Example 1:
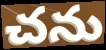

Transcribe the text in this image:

చను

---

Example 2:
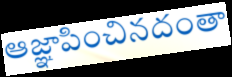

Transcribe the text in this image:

ఆజ్ఞాపించినదంతా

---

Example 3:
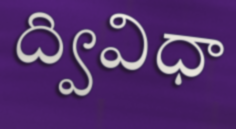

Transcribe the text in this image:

ద్వివిధా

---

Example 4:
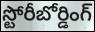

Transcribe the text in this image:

స్టోరీబోర్డింగ్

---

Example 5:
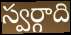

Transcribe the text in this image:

స్వర్గాది